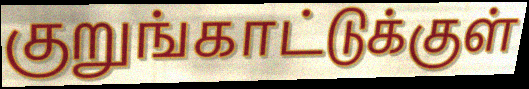
குறுங்காட்டுக்குள்